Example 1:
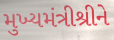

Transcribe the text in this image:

મુખ્યમંત્રીશ્રીને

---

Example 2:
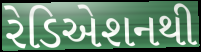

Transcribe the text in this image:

રેડિએશનથી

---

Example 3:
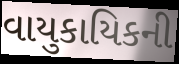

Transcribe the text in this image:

વાયુકાયિકની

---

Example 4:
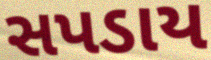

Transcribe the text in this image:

સપડાય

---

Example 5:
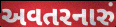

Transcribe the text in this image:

અવતરનારું